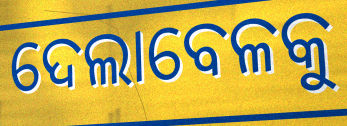
ଦେଲାବେଳକୁ